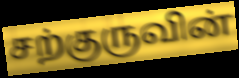
சற்குருவின்